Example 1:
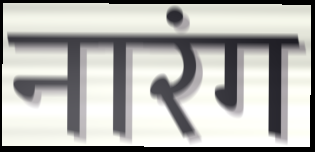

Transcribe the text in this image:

नारंग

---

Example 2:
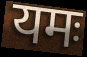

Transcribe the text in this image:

यमः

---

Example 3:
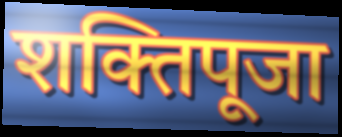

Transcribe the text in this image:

शक्तिपूजा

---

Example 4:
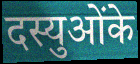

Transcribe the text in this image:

दस्युओंके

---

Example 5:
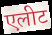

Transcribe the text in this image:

एलीट